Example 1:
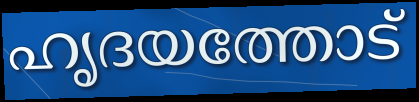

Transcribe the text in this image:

ഹൃദയത്തോട്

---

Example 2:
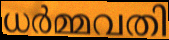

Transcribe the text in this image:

ധർമ്മവതി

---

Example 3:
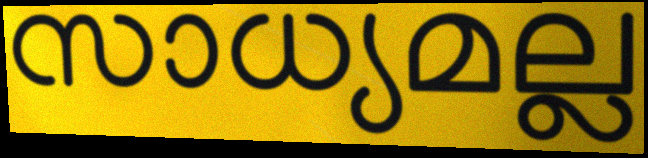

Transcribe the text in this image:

സാധ്യമല്ല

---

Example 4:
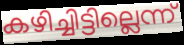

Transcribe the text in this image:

കഴിച്ചിട്ടില്ലെന്ന്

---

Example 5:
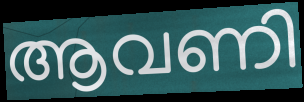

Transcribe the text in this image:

ആവണി